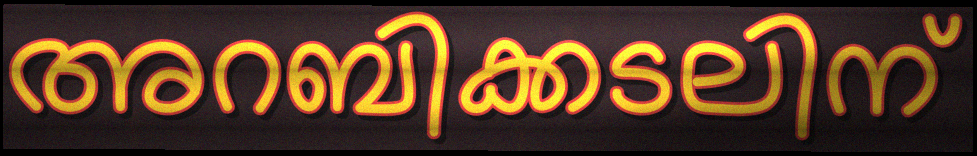
അറബിക്കടലിന്